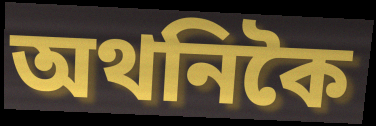
অথনিকৈ